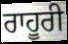
ਰਾਹੂਰੀ